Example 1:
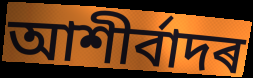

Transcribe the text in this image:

আশীৰ্বাদৰ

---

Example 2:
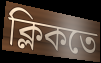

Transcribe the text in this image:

ক্লিকতে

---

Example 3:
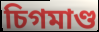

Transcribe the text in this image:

চিগমাণ্ড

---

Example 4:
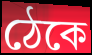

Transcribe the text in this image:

ঠেকে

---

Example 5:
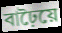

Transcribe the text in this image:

বাঢ়ৈয়ে